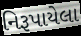
નિરૂપાયેલા